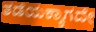
ತಡೆಯಕ್ಕಾಗದೇ